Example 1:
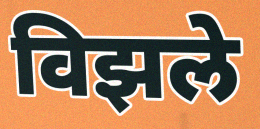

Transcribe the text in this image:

विझले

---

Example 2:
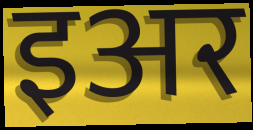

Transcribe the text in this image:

इअर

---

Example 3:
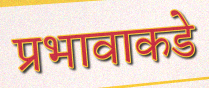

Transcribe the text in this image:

प्रभावाकडे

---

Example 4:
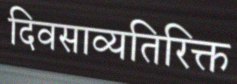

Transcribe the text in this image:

दिवसाव्यतिरिक्त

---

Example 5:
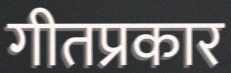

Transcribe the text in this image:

गीतप्रकार